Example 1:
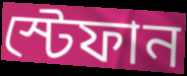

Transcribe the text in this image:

স্টেফান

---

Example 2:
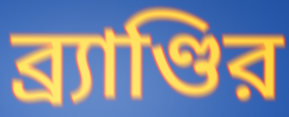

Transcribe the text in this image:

ব্র্যাণ্ডির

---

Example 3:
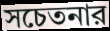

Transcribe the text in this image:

সচেতনার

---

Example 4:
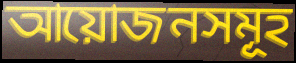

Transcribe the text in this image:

আয়োজনসমূহ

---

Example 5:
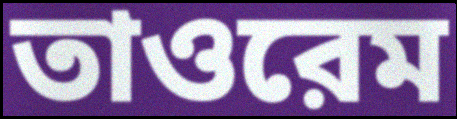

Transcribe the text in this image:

তাওরেম